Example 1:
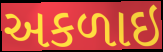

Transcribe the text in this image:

અકળાઇ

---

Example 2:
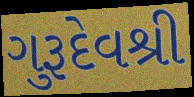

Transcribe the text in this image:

ગુરૂદેવશ્રી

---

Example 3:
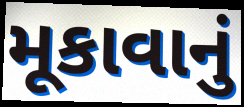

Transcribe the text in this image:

મૂકાવાનું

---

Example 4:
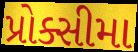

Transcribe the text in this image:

પ્રોક્સીમા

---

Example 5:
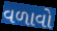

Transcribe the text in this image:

વળાવો